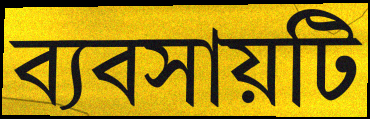
ব্যবসায়টি